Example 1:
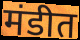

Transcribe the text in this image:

मंडीत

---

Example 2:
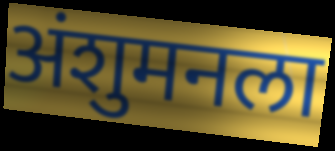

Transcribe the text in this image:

अंशुमनला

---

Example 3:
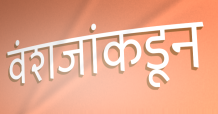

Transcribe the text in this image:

वंशजांकडून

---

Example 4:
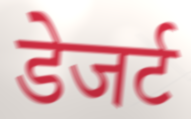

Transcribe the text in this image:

डेजर्ट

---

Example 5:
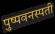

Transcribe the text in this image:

पुष्पवनस्पती